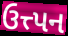
ઉત્ત્પન